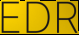
EDR